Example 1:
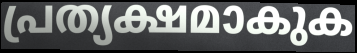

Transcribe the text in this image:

പ്രത്യക്ഷമാകുക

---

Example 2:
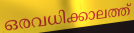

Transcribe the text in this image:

ഒരവധിക്കാലത്ത്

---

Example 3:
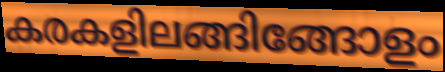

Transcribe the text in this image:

കരകളിലങ്ങിങ്ങോളം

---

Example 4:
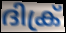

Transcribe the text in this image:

ദിക്ര്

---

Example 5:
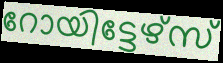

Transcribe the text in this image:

റോയിട്ടേഴ്സ്